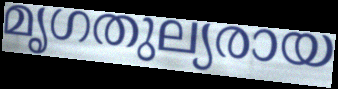
മൃഗതുല്യരായ